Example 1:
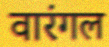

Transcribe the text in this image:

वारंगल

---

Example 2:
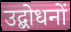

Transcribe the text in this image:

उद्बोधनों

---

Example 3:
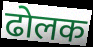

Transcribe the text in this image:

ढोलक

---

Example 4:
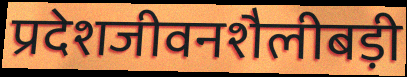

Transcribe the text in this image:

प्रदेशजीवनशैलीबड़ी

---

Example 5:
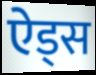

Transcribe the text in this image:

ऐड्स